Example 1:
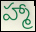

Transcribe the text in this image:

హ్మా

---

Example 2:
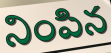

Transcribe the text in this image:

నింపిన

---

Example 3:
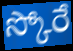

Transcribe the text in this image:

స్కోరే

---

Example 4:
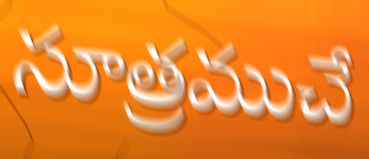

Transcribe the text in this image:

సూత్రముచే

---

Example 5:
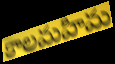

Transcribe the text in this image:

కాలమహిమ